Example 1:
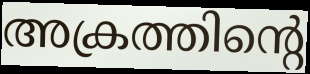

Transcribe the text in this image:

അക്രത്തിന്റെ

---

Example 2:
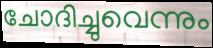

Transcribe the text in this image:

ചോദിച്ചുവെന്നും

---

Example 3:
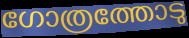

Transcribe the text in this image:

ഗോത്രത്തോടു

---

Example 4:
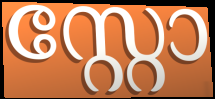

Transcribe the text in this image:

സ്റ്റോ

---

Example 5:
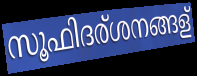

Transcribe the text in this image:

സൂഫിദര്ശനങ്ങള്